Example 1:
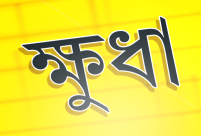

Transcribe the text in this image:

ক্ষুধা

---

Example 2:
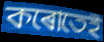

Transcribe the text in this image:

কৰোতেই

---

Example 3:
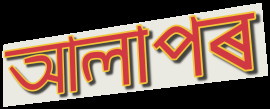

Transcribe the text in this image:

আলাপৰ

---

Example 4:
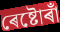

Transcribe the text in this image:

ৰেষ্টোৰাঁ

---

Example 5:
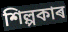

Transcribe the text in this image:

শিল্পকাৰ